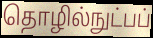
தொழில்நுட்பப்